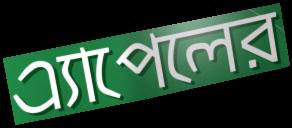
এ্যাপেলের